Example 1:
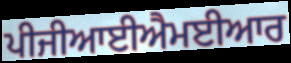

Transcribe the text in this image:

ਪੀਜੀਆਈਐਮਈਆਰ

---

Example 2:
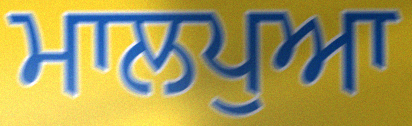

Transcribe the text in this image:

ਮਾਲਪੁਆ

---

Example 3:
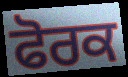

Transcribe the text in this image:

ਫੋਰਕ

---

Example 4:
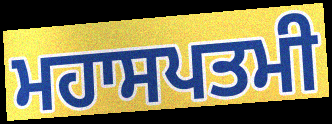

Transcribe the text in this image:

ਮਹਾਸਪਤਮੀ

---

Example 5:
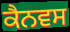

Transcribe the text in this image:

ਕੈਨਵਸ